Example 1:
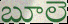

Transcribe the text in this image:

బూలె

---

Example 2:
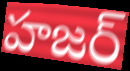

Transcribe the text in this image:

హజర్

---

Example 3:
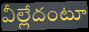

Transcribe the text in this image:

వీల్లేదంటూ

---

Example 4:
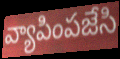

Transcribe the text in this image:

వ్యాపింపజేసి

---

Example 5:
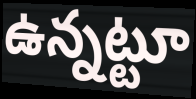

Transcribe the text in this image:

ఉన్నట్టూ